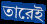
তারেই